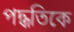
পদ্ধতিকে